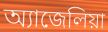
অ্যাজেলিয়া